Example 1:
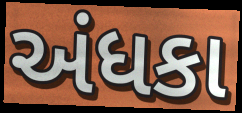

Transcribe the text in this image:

અંધકા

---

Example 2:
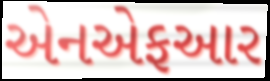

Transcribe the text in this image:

એનએફઆર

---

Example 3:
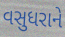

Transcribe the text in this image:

વસુધરાને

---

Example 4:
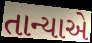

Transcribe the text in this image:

તાન્યાએ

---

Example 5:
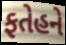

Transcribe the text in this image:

ફતેહને